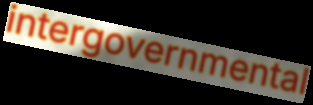
intergovernmental